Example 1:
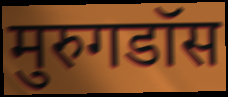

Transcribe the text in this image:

मुरुगडॉस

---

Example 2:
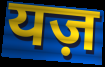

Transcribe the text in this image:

यज़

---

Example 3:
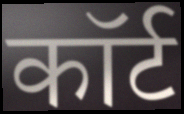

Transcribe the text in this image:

कॉर्ट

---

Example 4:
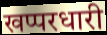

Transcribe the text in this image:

खप्परधारी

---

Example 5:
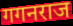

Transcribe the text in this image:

गगनराज